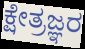
ಕ್ಷೇತ್ರಜ್ಞರ